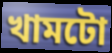
খামটো